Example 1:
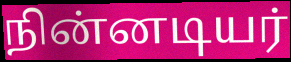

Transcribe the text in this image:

நின்னடியர்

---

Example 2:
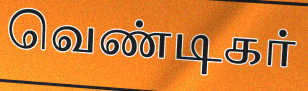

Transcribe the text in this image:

வெண்டிகர்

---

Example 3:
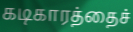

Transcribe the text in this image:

கடிகாரத்தைச்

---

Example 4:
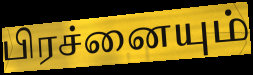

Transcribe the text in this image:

பிரச்னையும்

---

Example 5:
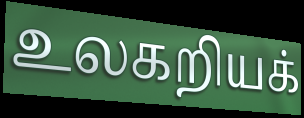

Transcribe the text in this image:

உலகறியக்